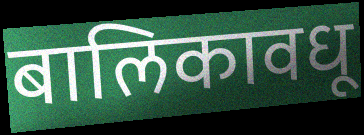
बालिकावधू